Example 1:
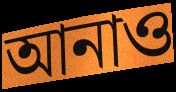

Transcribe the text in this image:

আনাও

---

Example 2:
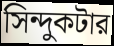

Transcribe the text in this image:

সিন্দুকটার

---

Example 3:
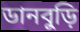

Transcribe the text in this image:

ডানবুড়ি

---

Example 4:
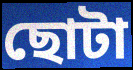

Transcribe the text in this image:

ছোটা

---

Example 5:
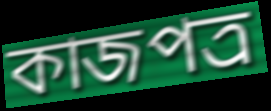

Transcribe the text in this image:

কাজপত্র